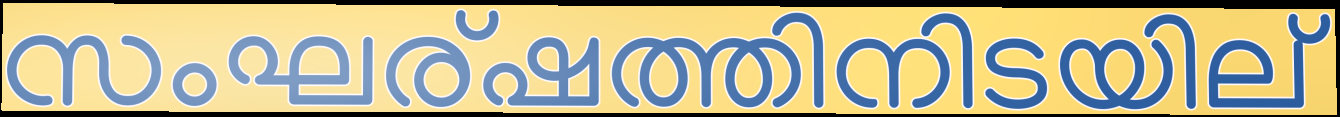
സംഘര്ഷത്തിനിടയില്